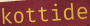
kottide